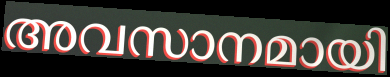
അവസാനമായി